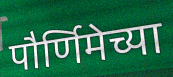
पौर्णिमेच्या